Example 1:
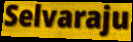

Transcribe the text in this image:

Selvaraju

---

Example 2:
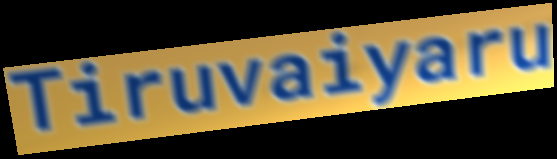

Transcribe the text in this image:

Tiruvaiyaru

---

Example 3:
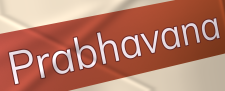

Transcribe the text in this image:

Prabhavana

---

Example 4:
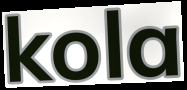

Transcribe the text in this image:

kola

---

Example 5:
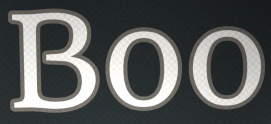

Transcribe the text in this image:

Boo